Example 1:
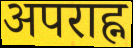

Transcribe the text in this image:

अपराह्न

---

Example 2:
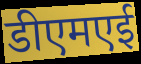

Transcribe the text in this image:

डीएमएई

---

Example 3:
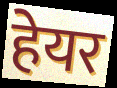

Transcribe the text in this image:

हेयर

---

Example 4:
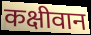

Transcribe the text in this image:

कक्षीवान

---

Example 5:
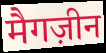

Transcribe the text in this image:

मैगज़ीन